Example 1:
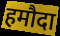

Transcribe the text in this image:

हमौदा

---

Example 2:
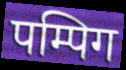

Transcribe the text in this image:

पम्पिग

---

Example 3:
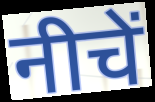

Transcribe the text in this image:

नीचें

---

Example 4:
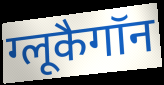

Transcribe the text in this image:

ग्लूकैगॉन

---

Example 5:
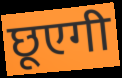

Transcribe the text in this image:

छूएगी